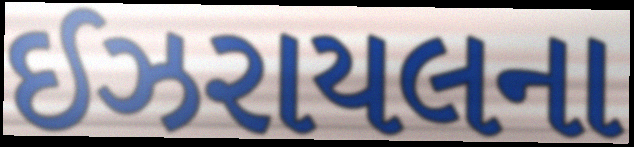
ઈઝરાયલના